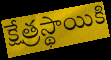
క్షేత్రస్థాయికి